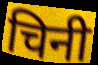
चिनी